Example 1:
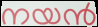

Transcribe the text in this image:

നയൻ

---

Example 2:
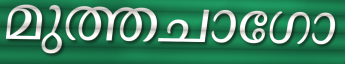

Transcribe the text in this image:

മുത്തചാഗോ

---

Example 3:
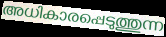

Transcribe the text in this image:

അധികാരപ്പെടുത്തുന്ന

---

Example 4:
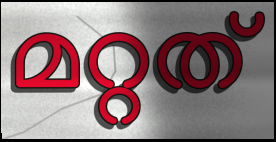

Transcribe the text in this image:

മറ്റത്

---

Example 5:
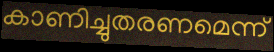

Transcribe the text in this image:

കാണിച്ചുതരണമെന്ന്